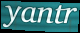
yantr